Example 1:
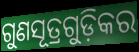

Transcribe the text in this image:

ଗୁଣସୂତ୍ରଗୁଡ଼ିକର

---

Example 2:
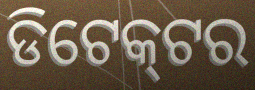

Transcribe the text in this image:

ଡିଟେକ୍‌ଟର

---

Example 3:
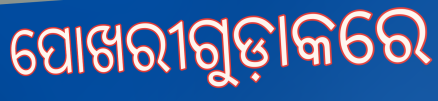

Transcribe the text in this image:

ପୋଖରୀଗୁଡ଼ାକରେ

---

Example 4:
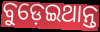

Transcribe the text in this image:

ବୁଡ଼େଇଥାନ୍ତ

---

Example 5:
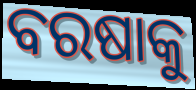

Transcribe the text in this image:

ବରଷାକୁ